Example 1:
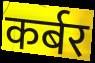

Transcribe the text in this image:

कर्बर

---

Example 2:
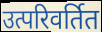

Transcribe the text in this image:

उत्परिवर्तित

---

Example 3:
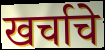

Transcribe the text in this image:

खर्चाचे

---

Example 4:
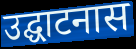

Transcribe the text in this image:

उद्घाटनास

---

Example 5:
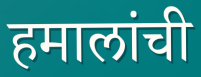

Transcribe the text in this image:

हमालांची